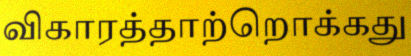
விகாரத்தாற்றொக்கது